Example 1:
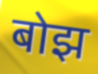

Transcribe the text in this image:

बोझ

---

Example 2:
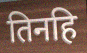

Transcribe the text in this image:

तिनहि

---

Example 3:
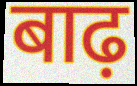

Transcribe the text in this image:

बाढ़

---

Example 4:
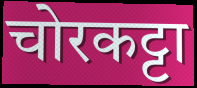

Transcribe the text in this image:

चोरकट्टा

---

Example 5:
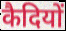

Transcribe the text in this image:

कैदियों